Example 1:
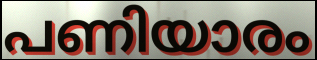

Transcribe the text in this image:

പണിയാരം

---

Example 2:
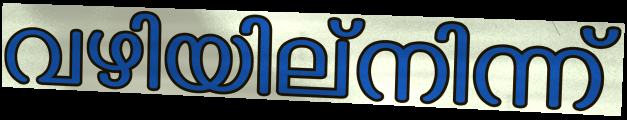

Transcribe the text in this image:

വഴിയില്നിന്ന്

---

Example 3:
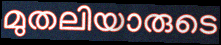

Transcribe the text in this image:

മുതലിയാരുടെ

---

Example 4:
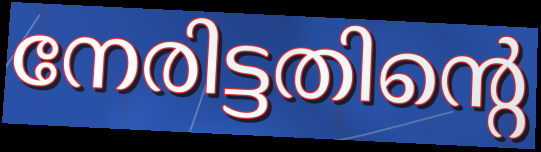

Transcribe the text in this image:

നേരിട്ടതിന്റെ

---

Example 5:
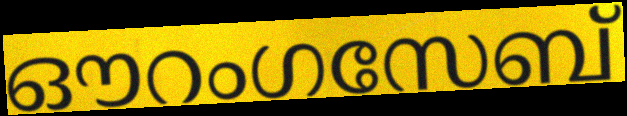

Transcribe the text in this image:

ഔറംഗസേബ്